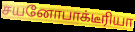
சயனோபாக்டீரியா